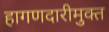
हागणदारीमुक्त